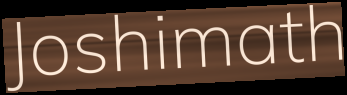
Joshimath